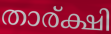
താര്ക്ഷി